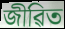
জীৱিত